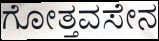
ಗೋತ್ತವಸೇನ